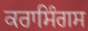
ਕਰਾਸਿੰਗਸ